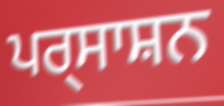
ਪਰ੍ਸਾਸ਼ਨ